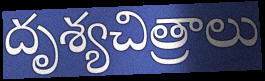
దృశ్యచిత్రాలు